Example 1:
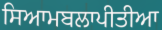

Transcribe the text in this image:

ਸਿਆਮਬਲਾਪੀਤੀਆ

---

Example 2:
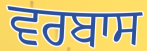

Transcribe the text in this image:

ਵਰਬਾਸ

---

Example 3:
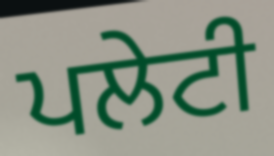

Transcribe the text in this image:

ਪਲੇਟੀ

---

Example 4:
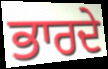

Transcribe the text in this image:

ਭਾਰਦੇ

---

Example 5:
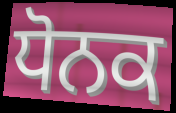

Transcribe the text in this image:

ਧੋਨਕ